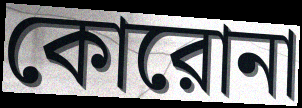
কোরোনা